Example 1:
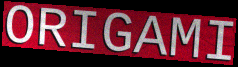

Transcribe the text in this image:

ORIGAMI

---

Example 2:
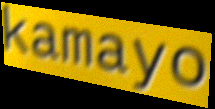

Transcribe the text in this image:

kamayo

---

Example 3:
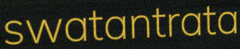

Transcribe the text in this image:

swatantrata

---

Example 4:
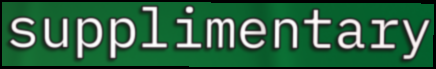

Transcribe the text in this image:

supplimentary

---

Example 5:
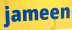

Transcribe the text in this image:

jameen